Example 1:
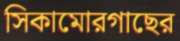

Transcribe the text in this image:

সিকামোরগাছের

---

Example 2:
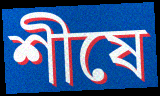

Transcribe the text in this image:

শীষে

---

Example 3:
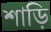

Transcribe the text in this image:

শাড়ি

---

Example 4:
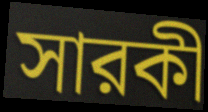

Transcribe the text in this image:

সারকী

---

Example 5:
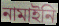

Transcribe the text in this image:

নামাইনি